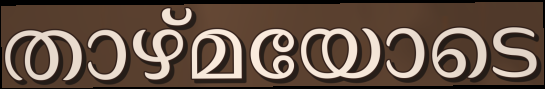
താഴ്മയോടെ